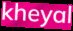
kheyal